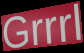
Grrrl